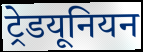
ट्रेडयूनियन